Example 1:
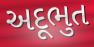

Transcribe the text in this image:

અદૂભુત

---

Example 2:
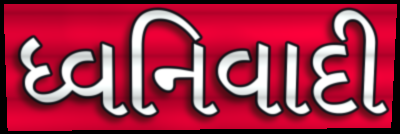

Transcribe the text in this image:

ધ્વનિવાદી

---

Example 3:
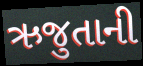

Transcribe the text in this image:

ઋજુતાની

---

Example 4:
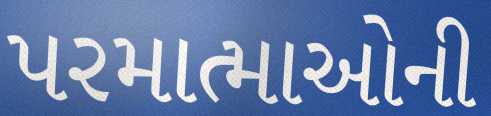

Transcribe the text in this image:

પરમાત્માઓની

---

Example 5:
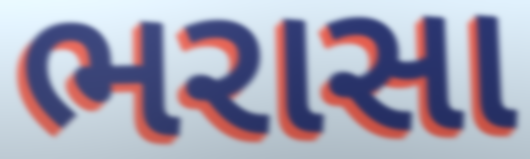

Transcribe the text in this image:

ભરાસા